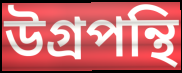
উগ্রপন্থি